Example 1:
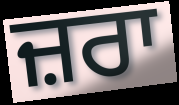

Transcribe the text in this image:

ਜ਼ਰਾ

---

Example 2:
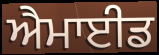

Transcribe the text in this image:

ਐਮਾਈਡ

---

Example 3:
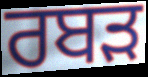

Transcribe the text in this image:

ਰਬੜ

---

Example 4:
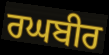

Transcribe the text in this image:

ਰਘਬੀਰ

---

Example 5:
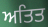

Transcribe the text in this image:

ਅਤਿਤ